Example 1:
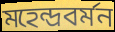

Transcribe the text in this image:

মহেন্দ্রবর্মন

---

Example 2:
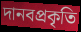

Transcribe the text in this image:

দানবপ্রকৃতি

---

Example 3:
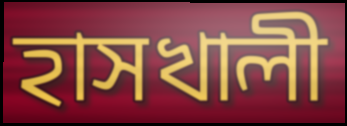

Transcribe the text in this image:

হাসখালী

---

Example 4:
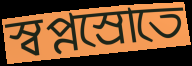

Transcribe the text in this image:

স্বপ্নস্রোতে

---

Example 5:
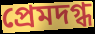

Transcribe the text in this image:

প্রেমদগ্ধ